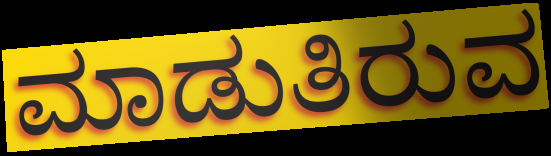
ಮಾಡುತಿರುವ